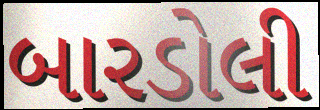
બારડોલી